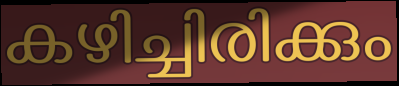
കഴിച്ചിരിക്കും